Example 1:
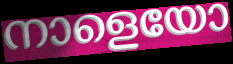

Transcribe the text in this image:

നാളെയോ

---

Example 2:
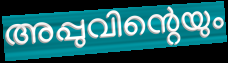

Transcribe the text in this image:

അപ്പുവിന്റെയും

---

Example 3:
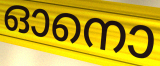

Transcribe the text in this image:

ഓനൊ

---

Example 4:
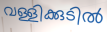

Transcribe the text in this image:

വള്ളിക്കുടിൽ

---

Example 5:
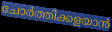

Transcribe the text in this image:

ചോർത്തിക്കളയാൻ